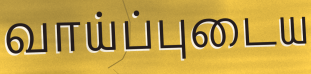
வாய்ப்புடைய